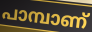
പാമ്പാണ്